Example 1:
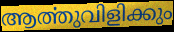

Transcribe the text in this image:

ആൎത്തുവിളിക്കും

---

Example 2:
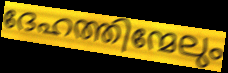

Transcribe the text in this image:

ദേഹത്തിന്മേലും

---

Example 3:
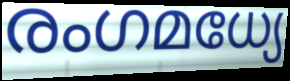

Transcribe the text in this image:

രംഗമധ്യേ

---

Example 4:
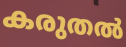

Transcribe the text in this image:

കരുതൽ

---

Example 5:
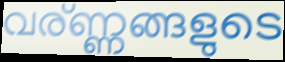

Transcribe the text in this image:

വര്ണ്ണങ്ങളുടെ